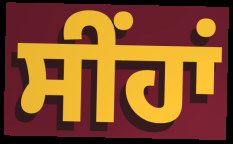
ਸੀਂਹਾਂ